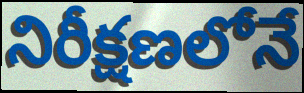
నిరీక్షణలోనే